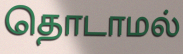
தொடாமல்